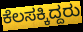
ಕೆಲಸಕ್ಕಿದ್ದರು